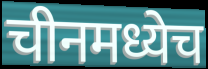
चीनमध्येच